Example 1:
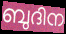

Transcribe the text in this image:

ബുദിന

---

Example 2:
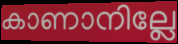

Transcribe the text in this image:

കാണാനില്ലേ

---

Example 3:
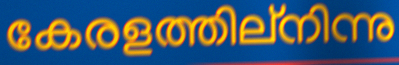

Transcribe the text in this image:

കേരളത്തില്നിന്നു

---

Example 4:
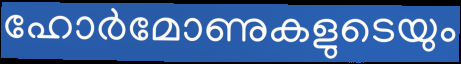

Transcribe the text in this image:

ഹോർമോണുകളുടെയും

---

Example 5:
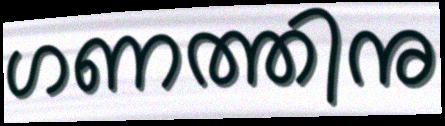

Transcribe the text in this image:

ഗണത്തിനു